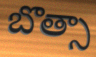
బొత్సా